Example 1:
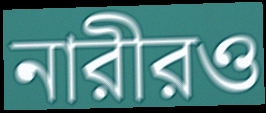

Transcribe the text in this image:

নারীরও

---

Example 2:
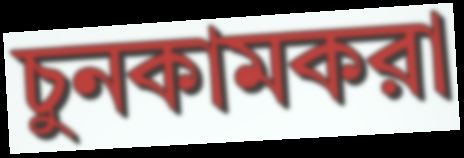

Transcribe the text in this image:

চুনকামকরা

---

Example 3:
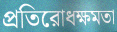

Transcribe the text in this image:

প্রতিরোধক্ষমতা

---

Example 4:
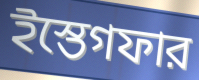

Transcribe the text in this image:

ইস্তেগফার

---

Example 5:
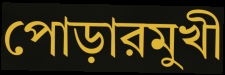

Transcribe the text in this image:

পোড়ারমুখী